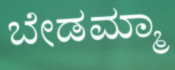
ಬೇಡಮ್ಮಾ